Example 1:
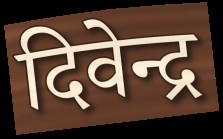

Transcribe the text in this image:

दिवेन्द्र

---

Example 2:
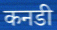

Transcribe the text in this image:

कनडी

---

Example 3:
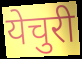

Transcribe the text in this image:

येचुरी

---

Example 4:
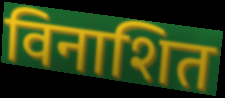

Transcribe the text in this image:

विनाशित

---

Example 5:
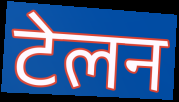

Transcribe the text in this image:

टेलन